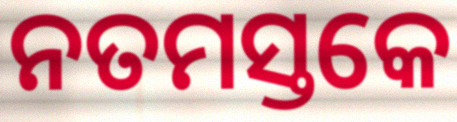
ନତମସ୍ତକେ